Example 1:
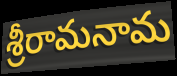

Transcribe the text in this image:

శ్రీరామనామ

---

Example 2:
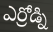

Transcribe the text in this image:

ఎర్రోడ్ని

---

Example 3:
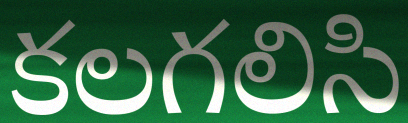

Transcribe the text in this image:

కలగలిసి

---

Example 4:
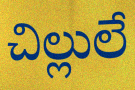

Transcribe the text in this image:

చిల్లులే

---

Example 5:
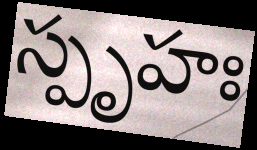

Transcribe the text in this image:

స్పృహః